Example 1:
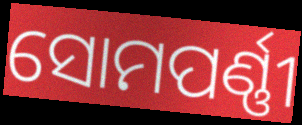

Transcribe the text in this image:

ସୋମପର୍ଣ୍ଣୀ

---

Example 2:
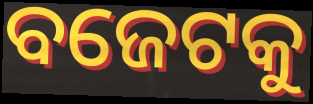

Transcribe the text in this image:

ବଜେଟକୁ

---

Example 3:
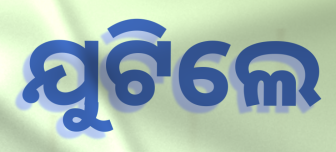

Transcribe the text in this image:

ଯୁଟିଲେ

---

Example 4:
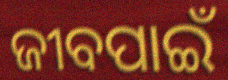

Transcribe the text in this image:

ଜୀବପାଇଁ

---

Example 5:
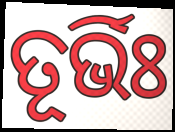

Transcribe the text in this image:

ତୂର୍ଭିଃ